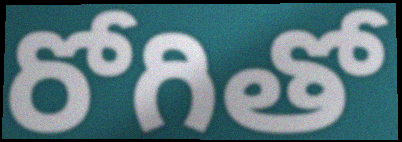
రోగితో